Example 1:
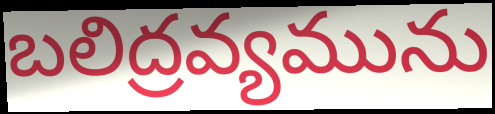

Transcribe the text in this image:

బలిద్రవ్యమును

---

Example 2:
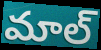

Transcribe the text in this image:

మాల్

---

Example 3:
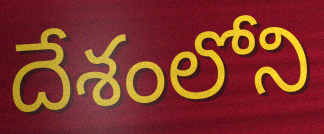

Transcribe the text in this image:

దేశంలోని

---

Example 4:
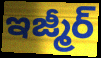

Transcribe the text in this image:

ఇజ్మీర్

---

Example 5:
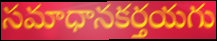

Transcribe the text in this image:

సమాధానకర్తయగు